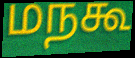
மநகூ